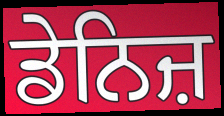
ਡੇਨਿਜ਼